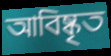
আবিষ্কৃত